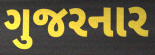
ગુજરનાર